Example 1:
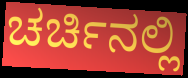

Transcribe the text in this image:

ಚರ್ಚಿನಲ್ಲಿ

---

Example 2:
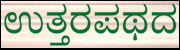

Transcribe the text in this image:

ಉತ್ತರಪಥದ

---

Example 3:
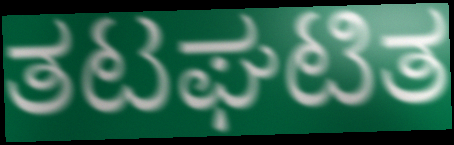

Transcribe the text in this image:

ತಟಘಟಿತ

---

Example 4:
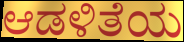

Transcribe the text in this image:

ಆಡಳಿತೆಯ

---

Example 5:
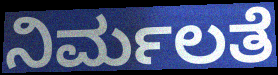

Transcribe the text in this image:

ನಿರ್ಮಲತೆ